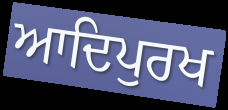
ਆਦਿਪੁਰਖ